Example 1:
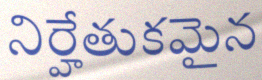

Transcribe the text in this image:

నిర్హేతుకమైన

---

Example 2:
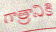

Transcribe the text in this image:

గాత్రానికి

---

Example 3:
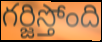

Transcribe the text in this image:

గర్జిస్తోంది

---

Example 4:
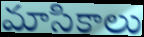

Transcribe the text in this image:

మాసికాలు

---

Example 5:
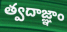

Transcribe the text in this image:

త్వదాజ్ఞాం